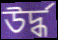
উৰ্দ্ধ